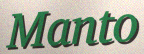
Manto